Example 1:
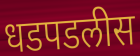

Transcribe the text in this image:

धडपडलीस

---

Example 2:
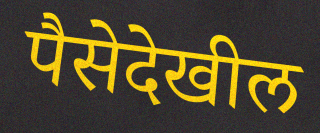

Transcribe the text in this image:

पैसेदेखील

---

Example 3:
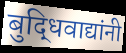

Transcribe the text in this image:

बुद्धिवाद्यांनी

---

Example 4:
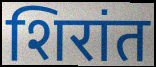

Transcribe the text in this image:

शिरांत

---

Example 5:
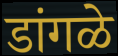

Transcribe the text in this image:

डांगळे